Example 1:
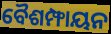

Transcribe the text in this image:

ବୈଶମ୍ଫାୟନ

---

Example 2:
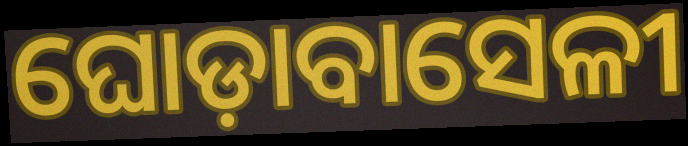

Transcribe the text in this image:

ଘୋଡ଼ାବାସେଳୀ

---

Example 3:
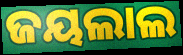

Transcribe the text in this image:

ଜୟଲାଲ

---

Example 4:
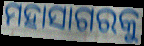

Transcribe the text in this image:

ମହାସାଗରକୁ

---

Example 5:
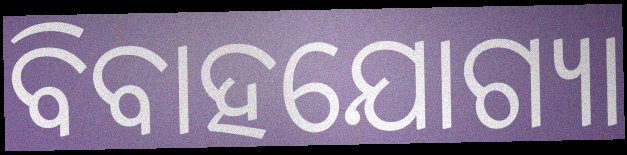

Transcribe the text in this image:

ବିବାହଯୋଗ୍ୟା